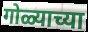
गोळ्याच्या